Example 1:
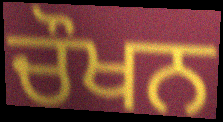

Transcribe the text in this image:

ਚੌਖਨ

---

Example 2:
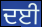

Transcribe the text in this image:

ਦਈ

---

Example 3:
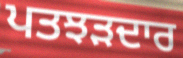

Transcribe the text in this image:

ਪਤਝੜਦਾਰ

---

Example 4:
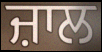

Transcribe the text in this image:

ਜ਼ਾਲ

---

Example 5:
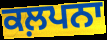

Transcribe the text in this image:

ਕਲ਼ਪਨਾ